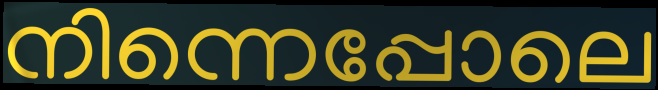
നിന്നെപ്പോലെ